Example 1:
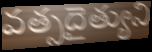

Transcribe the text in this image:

వత్సదైత్యుని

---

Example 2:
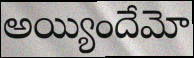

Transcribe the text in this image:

అయ్యిందేమో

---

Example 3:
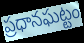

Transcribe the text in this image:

ప్రధానఘట్టం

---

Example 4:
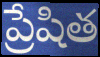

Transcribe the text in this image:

ప్రేషిత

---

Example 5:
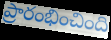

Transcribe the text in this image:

ప్రారంభించింది